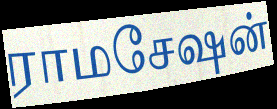
ராமசேஷன்